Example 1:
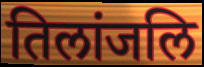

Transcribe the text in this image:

तिलांजलि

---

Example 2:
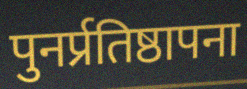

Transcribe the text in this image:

पुनर्प्रतिष्ठापना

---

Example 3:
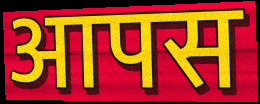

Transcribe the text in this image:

आपस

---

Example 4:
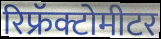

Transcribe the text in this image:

रिफ्रॅक्टोमीटर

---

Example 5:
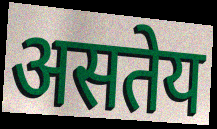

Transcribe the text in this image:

असतेय